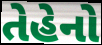
તેહેનો